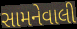
સામનેવાલી